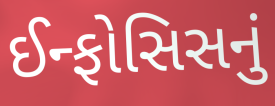
ઈન્ફોસિસનું